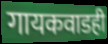
गायकवाडही